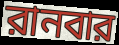
রানবার